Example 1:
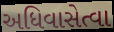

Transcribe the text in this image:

અધિવાસેત્વા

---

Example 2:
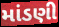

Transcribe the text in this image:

માંડણી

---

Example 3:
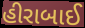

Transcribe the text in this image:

હીરાબાઈ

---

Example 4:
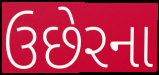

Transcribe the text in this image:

ઉછેરના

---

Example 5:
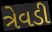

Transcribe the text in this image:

ત્રેવડી